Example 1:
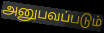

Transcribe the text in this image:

அனுபவப்படும்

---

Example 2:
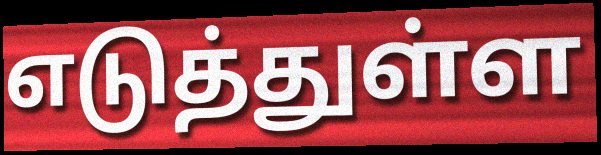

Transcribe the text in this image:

எடுத்துள்ள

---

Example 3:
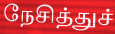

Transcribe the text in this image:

நேசித்துச்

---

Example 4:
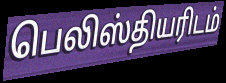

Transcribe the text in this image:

பெலிஸ்தியரிடம்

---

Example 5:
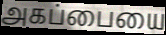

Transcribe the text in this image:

அகப்பையை